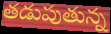
తడుపుతున్న